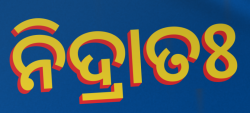
ନିଦ୍ରାତଃ